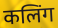
कलिंग